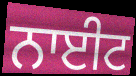
ਨਾਈਟ